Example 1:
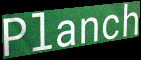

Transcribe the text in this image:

Planch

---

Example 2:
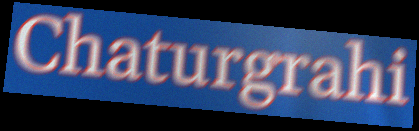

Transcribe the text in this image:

Chaturgrahi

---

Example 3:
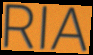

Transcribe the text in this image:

RIA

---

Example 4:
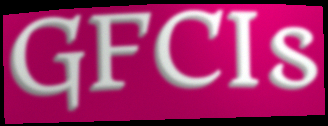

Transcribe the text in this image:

GFCIs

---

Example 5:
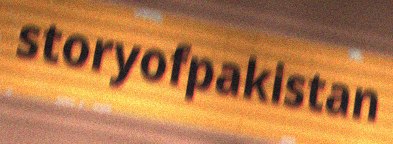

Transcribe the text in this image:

storyofpakistan